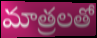
మాత్రలతో